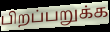
பிறப்பறுக்க